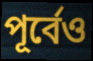
পূৰ্বেও